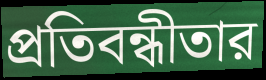
প্রতিবন্ধীতার